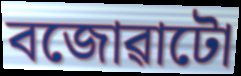
বজোৱাটো